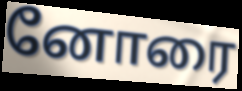
னோரை